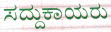
ಸದ್ದುಕಾಯರು